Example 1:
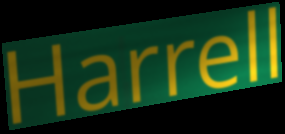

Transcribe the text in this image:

Harrell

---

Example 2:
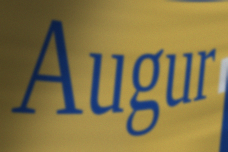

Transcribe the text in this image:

Augur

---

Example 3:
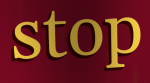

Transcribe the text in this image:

stop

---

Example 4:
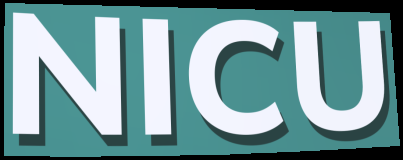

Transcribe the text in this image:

NICU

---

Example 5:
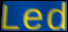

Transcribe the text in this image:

Led